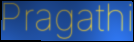
Pragathi